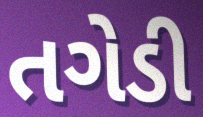
તગેડી